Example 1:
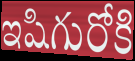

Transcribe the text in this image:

ఇషిగురోకి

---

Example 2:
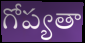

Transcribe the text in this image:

గోప్యతా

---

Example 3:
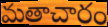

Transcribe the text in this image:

మతాచారం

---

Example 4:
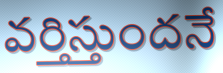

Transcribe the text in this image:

వర్తిస్తుందనే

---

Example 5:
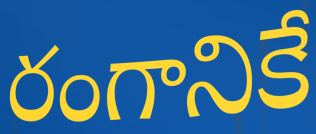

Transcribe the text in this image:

రంగానికే